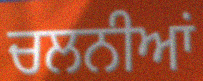
ਚਲਨੀਆਂ